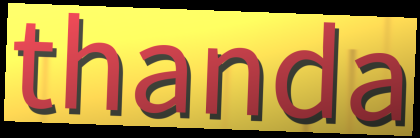
thanda